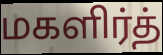
மகளிர்த்